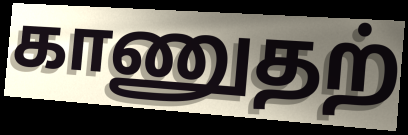
காணுதற்